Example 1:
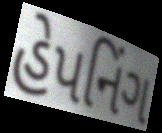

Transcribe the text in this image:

હેપનિંગ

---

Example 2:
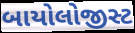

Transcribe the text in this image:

બાયોલોજીસ્ટ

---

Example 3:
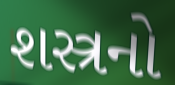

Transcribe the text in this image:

શસ્ત્રનો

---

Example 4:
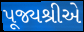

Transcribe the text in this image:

પૂજ્યશ્રીએ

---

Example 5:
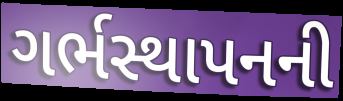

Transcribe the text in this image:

ગર્ભસ્થાપનની